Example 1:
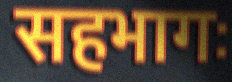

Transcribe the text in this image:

सहभागः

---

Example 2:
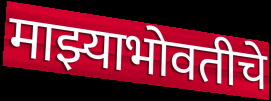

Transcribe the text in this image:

माझ्याभोवतीचे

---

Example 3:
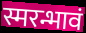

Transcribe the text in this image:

स्मरन्भावं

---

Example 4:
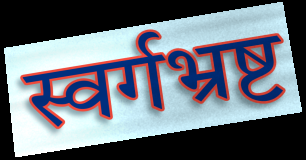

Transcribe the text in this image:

स्वर्गभ्रष्ट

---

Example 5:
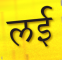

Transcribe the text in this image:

लई